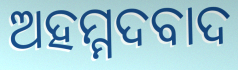
ଅହମ୍ମଦବାଦ